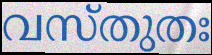
വസ്തുതഃ